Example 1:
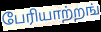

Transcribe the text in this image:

பேரியாற்றங்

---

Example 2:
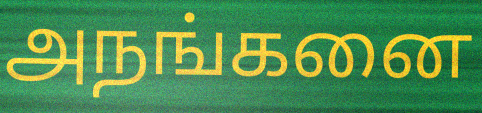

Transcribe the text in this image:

அநங்கனை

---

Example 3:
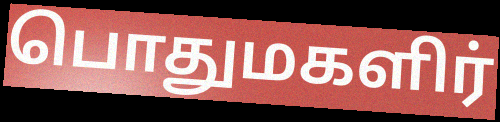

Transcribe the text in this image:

பொதுமகளிர்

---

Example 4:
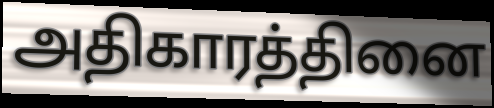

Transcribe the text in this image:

அதிகாரத்தினை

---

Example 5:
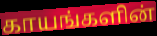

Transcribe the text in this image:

காயங்களின்